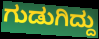
ಗುಡುಗಿದ್ದು